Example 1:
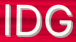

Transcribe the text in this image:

IDG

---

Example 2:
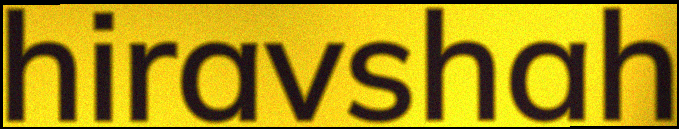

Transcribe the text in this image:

hiravshah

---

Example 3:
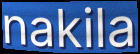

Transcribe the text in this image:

nakila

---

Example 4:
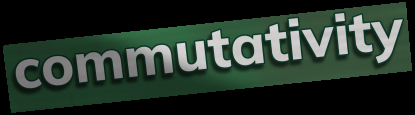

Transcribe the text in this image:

commutativity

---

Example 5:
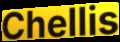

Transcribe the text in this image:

Chellis